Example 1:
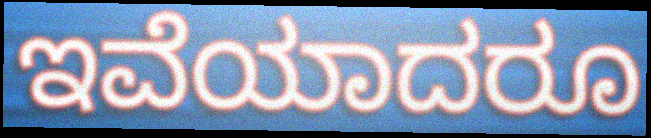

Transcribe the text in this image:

ಇವೆಯಾದರೂ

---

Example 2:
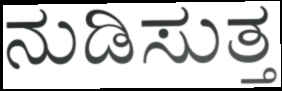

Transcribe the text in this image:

ನುಡಿಸುತ್ತ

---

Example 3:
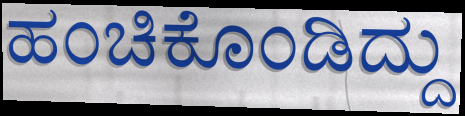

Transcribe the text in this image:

ಹಂಚಿಕೊಂಡಿದ್ದು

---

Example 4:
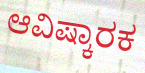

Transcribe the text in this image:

ಆವಿಷ್ಕಾರಕ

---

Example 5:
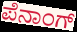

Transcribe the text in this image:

ಪೆನಾಂಗ್